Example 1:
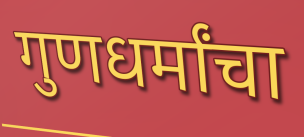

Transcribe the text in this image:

गुणधर्मांचा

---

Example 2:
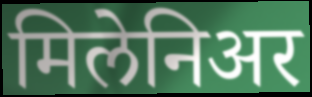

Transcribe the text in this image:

मिलेनिअर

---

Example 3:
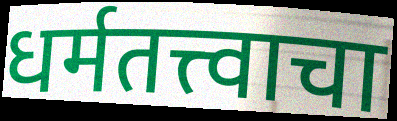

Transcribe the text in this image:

धर्मतत्त्वाचा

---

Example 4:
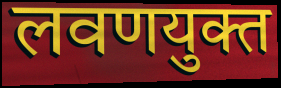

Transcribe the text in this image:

लवणयुक्त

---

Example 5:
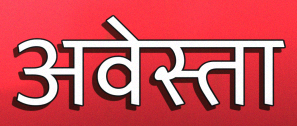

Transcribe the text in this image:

अवेस्ता